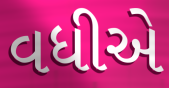
વધીએ